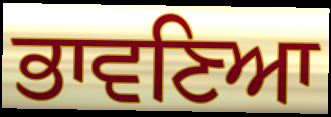
ਭਾਵਣਿਆ